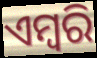
ଏମ୍ବରି